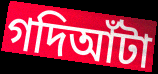
গদিআঁটা